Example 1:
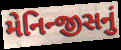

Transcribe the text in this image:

મેનિન્જીસનું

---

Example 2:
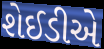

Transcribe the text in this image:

શેઈડીએ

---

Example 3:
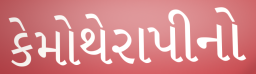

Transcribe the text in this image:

કેમોથેરાપીનો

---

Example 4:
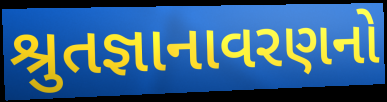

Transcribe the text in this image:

શ્રુતજ્ઞાનાવરણનો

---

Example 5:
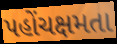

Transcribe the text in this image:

પહોંચક્ષમતા